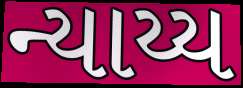
ન્યાય્ય